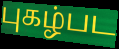
புகழ்பட